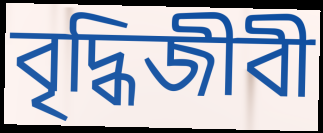
বৃদ্ধিজীবী